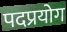
पदप्रयोग